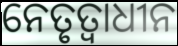
ନେତୃତ୍ୱାଧୀନ